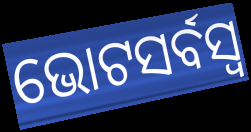
ଭୋଟସର୍ବସ୍ବ